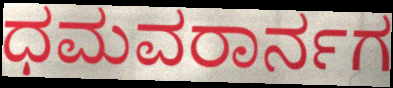
ಧಮವರಾರ್ನಗ